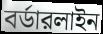
বর্ডারলাইন